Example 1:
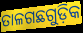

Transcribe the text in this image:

ତାଳଗଛଗୁଡ଼ିକ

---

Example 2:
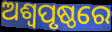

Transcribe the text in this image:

ଅଶ୍ୱପୃଷ୍ଠରେ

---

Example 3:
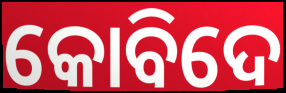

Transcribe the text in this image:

କୋବିଦେ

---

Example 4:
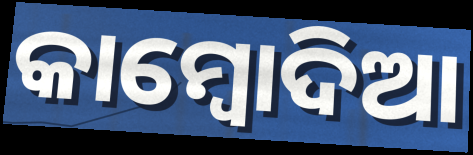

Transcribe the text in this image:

କାମ୍ବୋଦିଆ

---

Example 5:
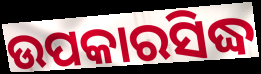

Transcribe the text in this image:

ଉପକାରସିଦ୍ଧ